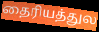
தைரியத்துல